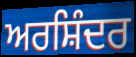
ਅਰਸ਼ਿੰਦਰ